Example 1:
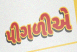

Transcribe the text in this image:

પીગળીએ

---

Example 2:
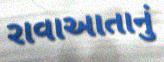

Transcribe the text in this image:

રાવાઆતાનું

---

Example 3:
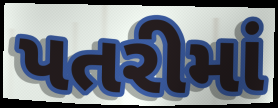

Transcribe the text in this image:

પતરીમાં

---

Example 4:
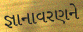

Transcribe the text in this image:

જ્ઞાનાવરણને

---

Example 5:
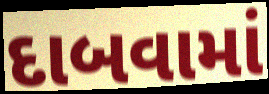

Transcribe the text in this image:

દાબવામાં